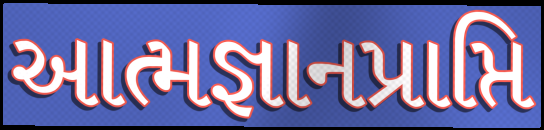
આત્મજ્ઞાનપ્રાપ્તિ